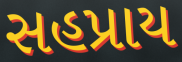
સહપ્રાય